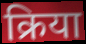
क्रिया